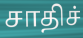
சாதிச்